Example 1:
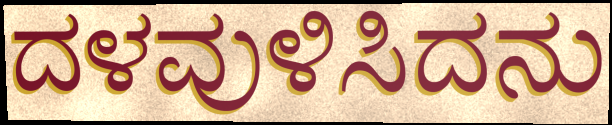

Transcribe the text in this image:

ದಳವುಳಿಸಿದನು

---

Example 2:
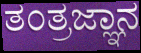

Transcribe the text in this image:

ತಂತ್ರಜ್ಞಾನ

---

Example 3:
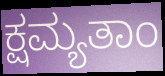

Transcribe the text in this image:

ಕ್ಷಮ್ಯತಾಂ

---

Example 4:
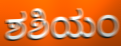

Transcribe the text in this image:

ಶಶಿಯಂ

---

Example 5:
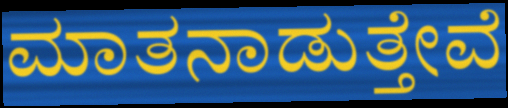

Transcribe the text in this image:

ಮಾತನಾಡುತ್ತೇವೆ